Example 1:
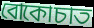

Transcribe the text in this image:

বোকোচাত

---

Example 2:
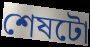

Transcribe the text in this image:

শেষটো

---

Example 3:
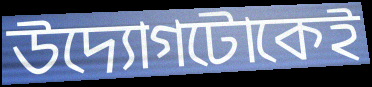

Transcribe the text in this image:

উদ্যোগটোকেই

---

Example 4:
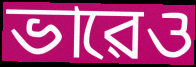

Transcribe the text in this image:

ভাৱেও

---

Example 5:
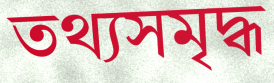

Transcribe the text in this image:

তথ্যসমৃদ্ধ